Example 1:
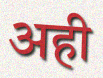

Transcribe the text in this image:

अही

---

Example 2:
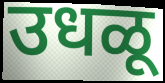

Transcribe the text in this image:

उधळू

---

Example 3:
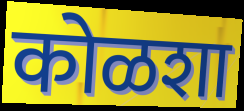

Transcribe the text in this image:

कोळशा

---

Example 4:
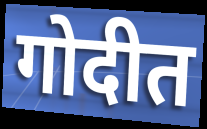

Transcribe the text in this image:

गोदीत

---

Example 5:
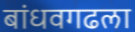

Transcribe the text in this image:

बांधवगढला